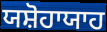
ਯਸ਼ੋਹਾਯਾਹ